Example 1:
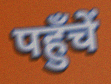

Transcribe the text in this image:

पहुँचें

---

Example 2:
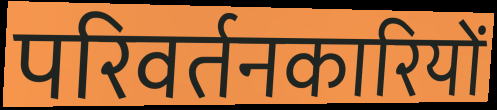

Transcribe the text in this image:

परिवर्तनकारियों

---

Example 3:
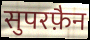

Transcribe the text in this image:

सुपरफ़ैन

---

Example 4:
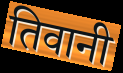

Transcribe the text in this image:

तिवानी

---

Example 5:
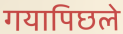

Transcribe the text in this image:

गयापिछले